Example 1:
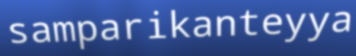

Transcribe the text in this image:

samparikanteyya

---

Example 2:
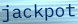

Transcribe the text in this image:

jackpot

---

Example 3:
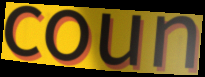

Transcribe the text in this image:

coun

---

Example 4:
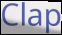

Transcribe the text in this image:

Clap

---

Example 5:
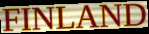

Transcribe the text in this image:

FINLAND